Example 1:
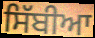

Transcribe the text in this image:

ਸਿੱਬੀਆ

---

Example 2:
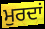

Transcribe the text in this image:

ਮੁਰਦਾਂ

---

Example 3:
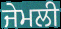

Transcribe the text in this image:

ਜੇਮਲੀ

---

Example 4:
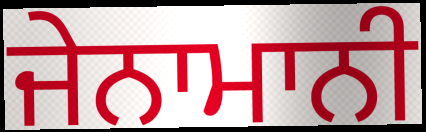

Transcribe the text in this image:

ਜੇਨਾਮਾਨੀ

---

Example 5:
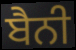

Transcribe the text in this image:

ਬੈਨੀ